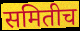
समितीच